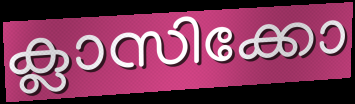
ക്ലാസിക്കോ